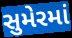
સુમેરમાં